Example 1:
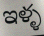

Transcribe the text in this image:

ఇళ్ళ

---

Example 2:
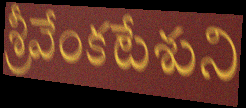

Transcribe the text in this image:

శ్రీవేంకటేశుని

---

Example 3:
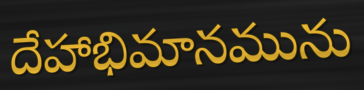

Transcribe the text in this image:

దేహాభిమానమును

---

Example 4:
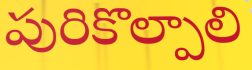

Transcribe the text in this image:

పురికొల్పాలి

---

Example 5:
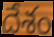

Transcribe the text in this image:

దేశం